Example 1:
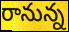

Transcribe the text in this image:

రానున్న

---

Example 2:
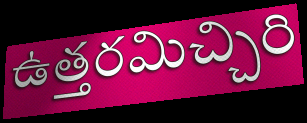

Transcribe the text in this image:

ఉత్తరమిచ్చిరి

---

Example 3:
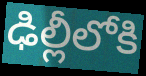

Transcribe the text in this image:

ఢిల్లీలోకి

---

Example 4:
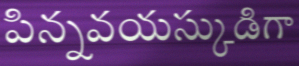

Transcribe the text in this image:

పిన్నవయస్కుడిగా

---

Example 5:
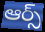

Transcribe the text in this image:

ఆర్స్